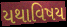
યથાવિષય